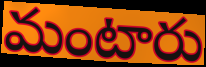
మంటారు